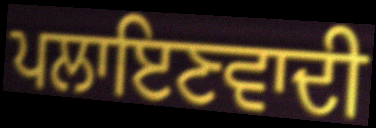
ਪਲਾਇਣਵਾਦੀ